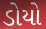
ડોયો